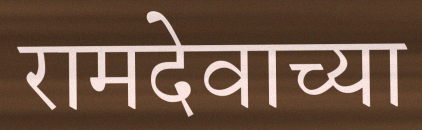
रामदेवाच्या